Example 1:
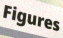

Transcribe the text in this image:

Figures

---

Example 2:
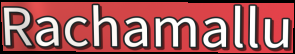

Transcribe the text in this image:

Rachamallu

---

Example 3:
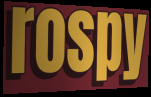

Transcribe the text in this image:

rospy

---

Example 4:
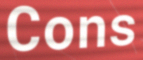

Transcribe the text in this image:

Cons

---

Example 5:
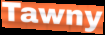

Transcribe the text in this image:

Tawny